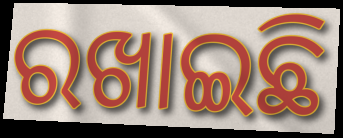
ରଖାଇଛି